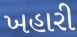
ખહારી